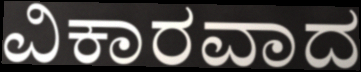
ವಿಕಾರವಾದ